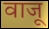
वाजू